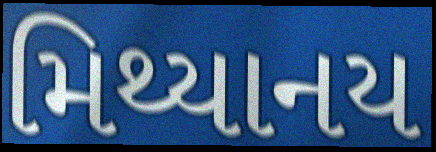
મિથ્યાનય